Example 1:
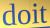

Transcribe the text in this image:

doit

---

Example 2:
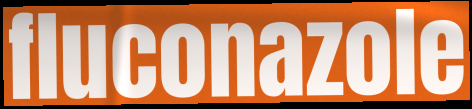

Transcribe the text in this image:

fluconazole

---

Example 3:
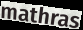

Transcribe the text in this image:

mathras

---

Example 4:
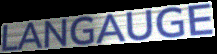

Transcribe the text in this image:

LANGAUGE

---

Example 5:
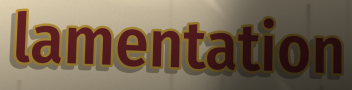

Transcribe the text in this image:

lamentation